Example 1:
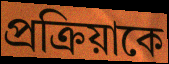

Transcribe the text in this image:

প্রক্রিয়াকে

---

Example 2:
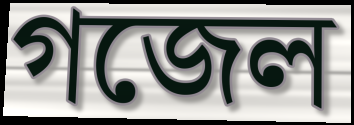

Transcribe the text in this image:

গজেল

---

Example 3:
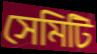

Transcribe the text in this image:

সেমিটি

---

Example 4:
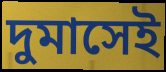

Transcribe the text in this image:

দুমাসেই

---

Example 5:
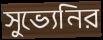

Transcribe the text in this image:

সুভ্যেনির